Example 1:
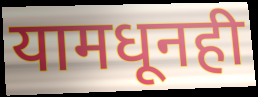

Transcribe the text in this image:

यामधूनही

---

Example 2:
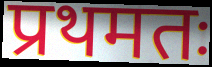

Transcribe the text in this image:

प्रथमतः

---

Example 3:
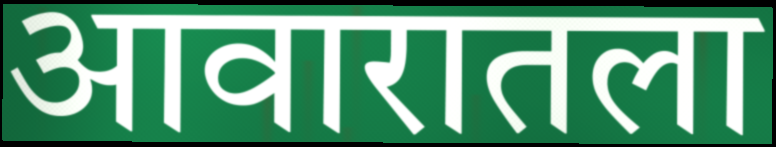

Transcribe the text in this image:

आवारातला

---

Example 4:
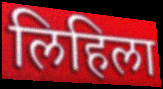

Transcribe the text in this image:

लिहिला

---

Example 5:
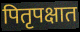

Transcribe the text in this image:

पितृपक्षात